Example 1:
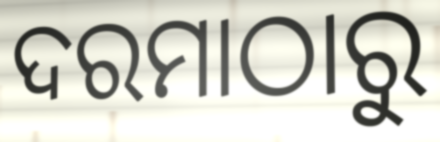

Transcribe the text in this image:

ଦରମାଠାରୁ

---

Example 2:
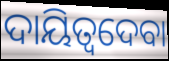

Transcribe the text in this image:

ଦାୟିତ୍ୱଦେବା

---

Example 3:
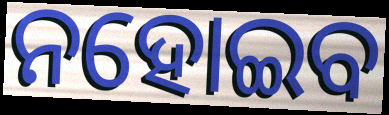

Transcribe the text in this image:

ନହୋଇବ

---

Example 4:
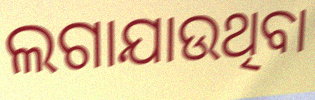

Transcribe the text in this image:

ଲଗାଯାଉଥିବା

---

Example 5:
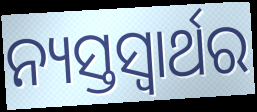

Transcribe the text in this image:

ନ୍ୟସ୍ତସ୍ୱାର୍ଥର